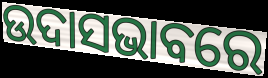
ଉଦାସଭାବରେ